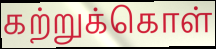
கற்றுக்கொள்